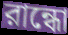
রান্ধো